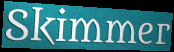
Skimmer